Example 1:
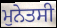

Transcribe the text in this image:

ਮੁਨੇਤਸੀ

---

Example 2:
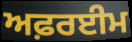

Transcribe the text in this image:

ਅਫ਼ਰਈਮ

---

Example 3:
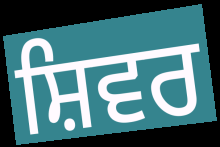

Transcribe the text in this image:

ਸ਼ਿਵਰ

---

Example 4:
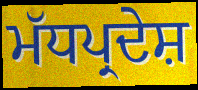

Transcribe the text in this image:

ਮੱਧਪ੍ਰਦੇਸ਼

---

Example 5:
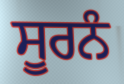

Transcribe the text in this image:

ਸੂਰਨੰ